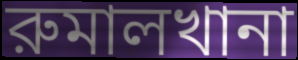
রুমালখানা